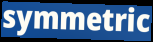
symmetric